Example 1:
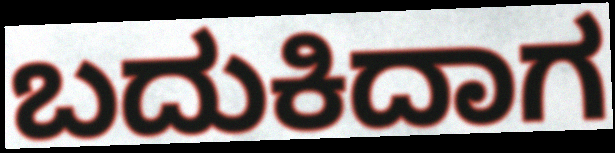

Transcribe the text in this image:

ಬದುಕಿದಾಗ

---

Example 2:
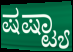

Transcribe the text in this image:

ಷಷ್ಟ್ಯಾ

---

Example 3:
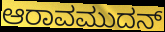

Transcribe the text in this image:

ಆರಾವಮುದನ್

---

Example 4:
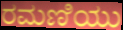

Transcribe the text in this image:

ರಮಣಿಯು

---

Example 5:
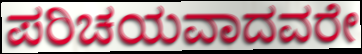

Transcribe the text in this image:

ಪರಿಚಯವಾದವರೇ